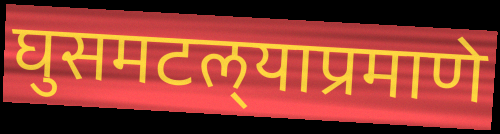
घुसमटल्याप्रमाणे